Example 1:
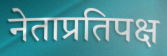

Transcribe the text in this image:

नेताप्रतिपक्ष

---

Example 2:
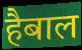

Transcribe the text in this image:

हैबाल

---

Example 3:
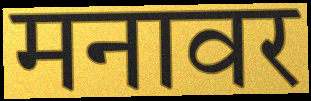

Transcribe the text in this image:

मनावर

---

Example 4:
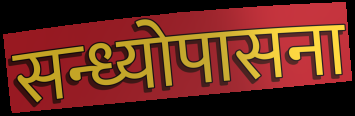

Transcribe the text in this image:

सन्ध्योपासना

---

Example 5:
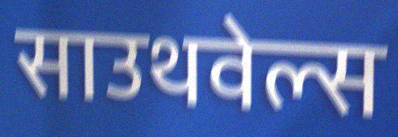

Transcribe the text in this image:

साउथवेल्स